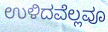
ಉಳಿದವೆಲ್ಲವೂ